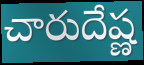
చారుదేష్ణ